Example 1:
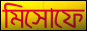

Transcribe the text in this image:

মিসোফে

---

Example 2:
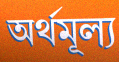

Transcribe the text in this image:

অর্থমূল্য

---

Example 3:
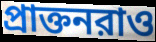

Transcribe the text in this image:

প্রাক্তনরাও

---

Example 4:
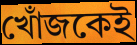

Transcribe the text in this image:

খোঁজকেই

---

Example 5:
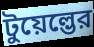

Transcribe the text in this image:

টুয়েল্ভের